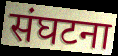
संघटना